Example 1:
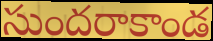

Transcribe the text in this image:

సుందరాకాండ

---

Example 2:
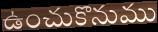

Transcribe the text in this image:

ఉంచుకొనుము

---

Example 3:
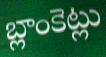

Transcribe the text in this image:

బ్లాంకెట్లు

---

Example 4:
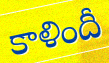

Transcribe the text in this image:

కాళిందీ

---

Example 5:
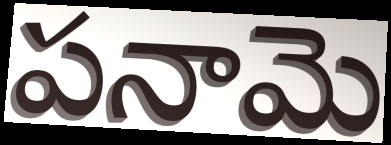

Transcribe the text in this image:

పనామె